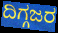
ದಿಗ್ಗಜರ